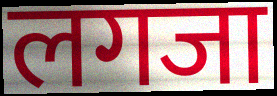
लगजा